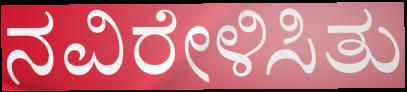
ನವಿರೇಳಿಸಿತು